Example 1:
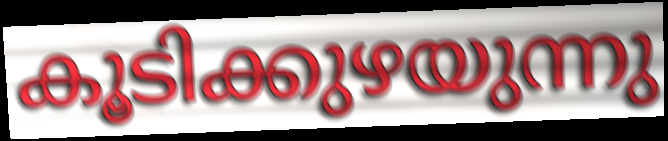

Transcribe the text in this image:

കൂടിക്കുഴയുന്നു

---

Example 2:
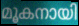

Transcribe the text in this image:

മൂകനായി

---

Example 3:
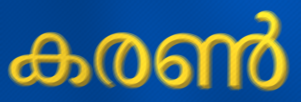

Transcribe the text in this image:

കരൺ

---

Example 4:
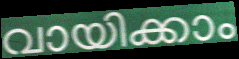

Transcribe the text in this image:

വായിക്കാം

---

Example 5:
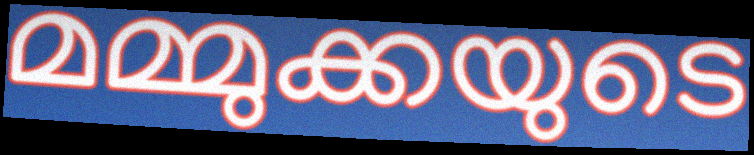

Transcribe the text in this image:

മമ്മുക്കയുടെ